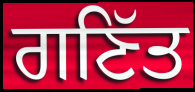
ਗਣਿੱਤ